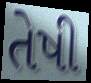
તેષી